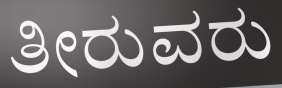
ತೀರುವರು